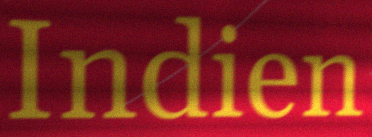
Indien